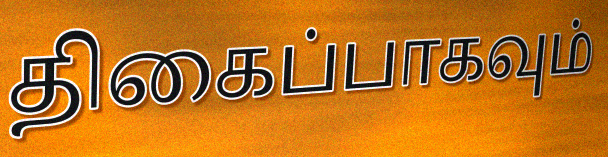
திகைப்பாகவும்